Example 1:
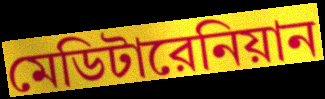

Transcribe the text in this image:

মেডিটারেনিয়ান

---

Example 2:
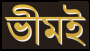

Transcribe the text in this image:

ভীমই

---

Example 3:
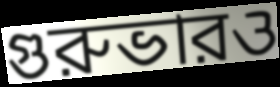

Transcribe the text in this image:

গুরুভারও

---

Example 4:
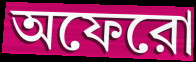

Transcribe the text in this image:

অফেরো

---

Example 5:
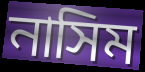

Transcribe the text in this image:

নাসিম